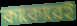
কাকোৱেই